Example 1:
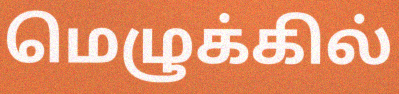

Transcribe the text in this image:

மெழுக்கில்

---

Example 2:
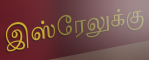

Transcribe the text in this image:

இஸ்ரேலுக்கு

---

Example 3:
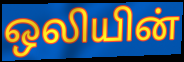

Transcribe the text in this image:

ஒலியின்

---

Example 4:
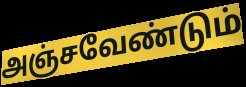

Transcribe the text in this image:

அஞ்சவேண்டும்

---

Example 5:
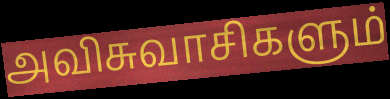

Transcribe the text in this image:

அவிசுவாசிகளும்